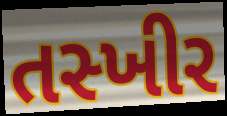
તસ્ખીર